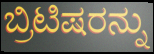
ಬ್ರಿಟಿಷರನ್ನು